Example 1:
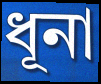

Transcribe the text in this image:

ধূনা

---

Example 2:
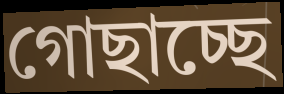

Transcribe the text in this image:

গোছাচ্ছে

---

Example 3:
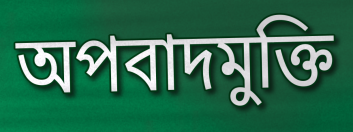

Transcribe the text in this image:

অপবাদমুক্তি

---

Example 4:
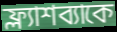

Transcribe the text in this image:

ফ্ল্যাশব্যাকে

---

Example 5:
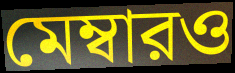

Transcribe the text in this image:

মেম্বারও